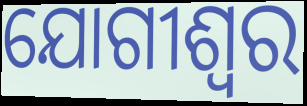
ଯୋଗୀଶ୍ୱର